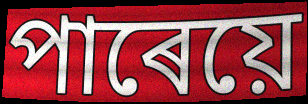
পাৰেয়ে